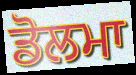
ਡੋਲਮਾ